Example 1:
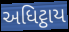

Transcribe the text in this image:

અધિટ્ઠાય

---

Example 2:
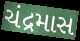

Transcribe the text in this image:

ચંદ્રમાસ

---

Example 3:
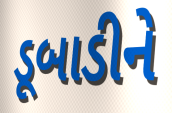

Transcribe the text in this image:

ડૂબાડીને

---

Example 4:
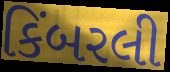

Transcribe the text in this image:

કિંબરલી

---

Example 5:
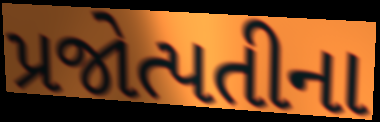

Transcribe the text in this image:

પ્રજોત્પતીના